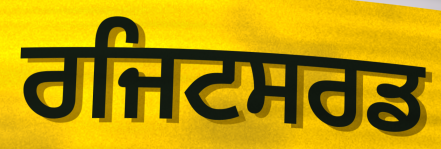
ਰਜਿਟਸਰਡ